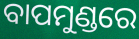
ବାପମୁଣ୍ଡରେ